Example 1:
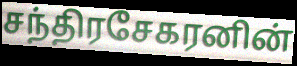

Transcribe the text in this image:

சந்திரசேகரனின்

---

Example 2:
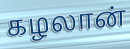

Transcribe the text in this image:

கழலான்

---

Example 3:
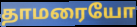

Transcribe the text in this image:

தாமரையோ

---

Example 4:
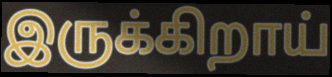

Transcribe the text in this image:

இருக்கிறாய்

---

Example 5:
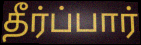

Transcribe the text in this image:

தீர்ப்பார்